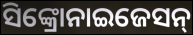
ସିଙ୍କ୍ରୋନାଇଜେସନ୍